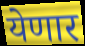
येणार